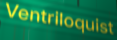
Ventriloquist